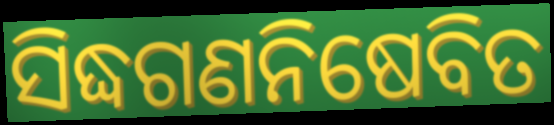
ସିଦ୍ଧଗଣନିଷେବିତ